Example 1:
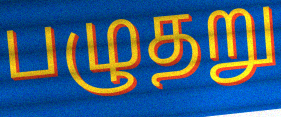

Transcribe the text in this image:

பழுதறு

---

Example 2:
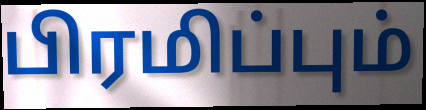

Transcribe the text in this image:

பிரமிப்பும்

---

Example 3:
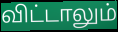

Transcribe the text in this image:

விட்டாலும்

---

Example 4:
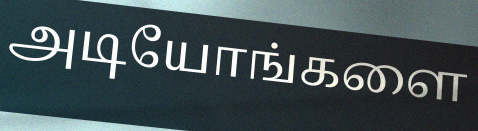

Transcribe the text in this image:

அடியோங்களை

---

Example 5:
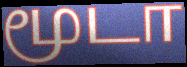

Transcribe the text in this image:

மூடா